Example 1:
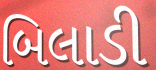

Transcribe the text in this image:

બિલાડી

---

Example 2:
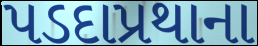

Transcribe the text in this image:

પડદાપ્રથાના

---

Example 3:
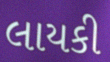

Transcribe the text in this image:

લાયકી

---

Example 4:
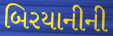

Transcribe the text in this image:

બિરયાનીની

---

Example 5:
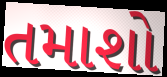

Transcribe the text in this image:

તમાશો